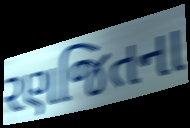
રણજિતના